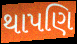
થાપણિ